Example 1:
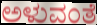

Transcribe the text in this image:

ಅಳುವಂತೆ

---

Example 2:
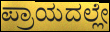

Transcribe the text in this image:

ಪ್ರಾಯದಲ್ಲೇ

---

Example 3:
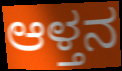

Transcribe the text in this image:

ಆಳ್ತನ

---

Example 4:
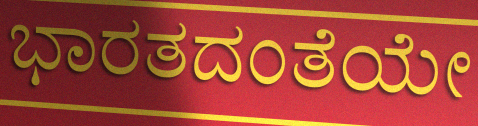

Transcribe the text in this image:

ಭಾರತದಂತೆಯೇ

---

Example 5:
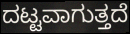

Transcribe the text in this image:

ದಟ್ಟವಾಗುತ್ತದೆ